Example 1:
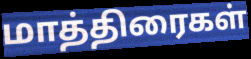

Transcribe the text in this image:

மாத்திரைகள்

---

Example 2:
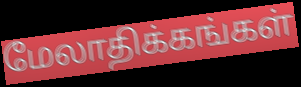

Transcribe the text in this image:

மேலாதிக்கங்கள்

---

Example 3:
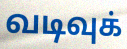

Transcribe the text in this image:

வடிவுக்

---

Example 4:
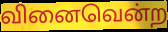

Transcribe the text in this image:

வினைவென்ற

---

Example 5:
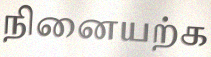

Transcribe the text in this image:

நினையற்க